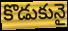
కొడుకునై